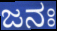
ಜನಃ